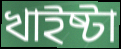
খাইষ্টা